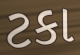
ટકા